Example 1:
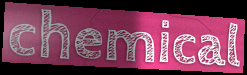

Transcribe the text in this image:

chemical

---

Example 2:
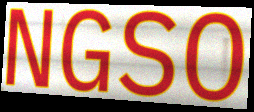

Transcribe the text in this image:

NGSO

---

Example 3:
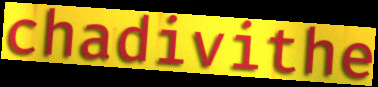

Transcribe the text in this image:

chadivithe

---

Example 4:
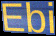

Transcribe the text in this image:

Ebi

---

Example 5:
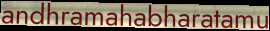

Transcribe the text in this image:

andhramahabharatamu